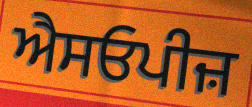
ਐਸਓਪੀਜ਼